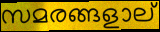
സമരങ്ങളാല്